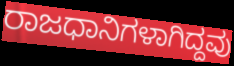
ರಾಜಧಾನಿಗಳಾಗಿದ್ದವು